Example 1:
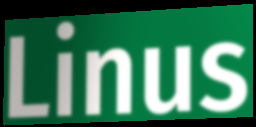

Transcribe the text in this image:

Linus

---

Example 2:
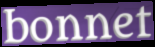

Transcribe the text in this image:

bonnet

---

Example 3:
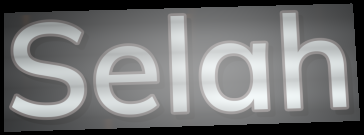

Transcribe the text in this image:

Selah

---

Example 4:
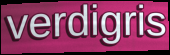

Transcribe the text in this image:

verdigris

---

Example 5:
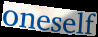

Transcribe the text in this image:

oneself